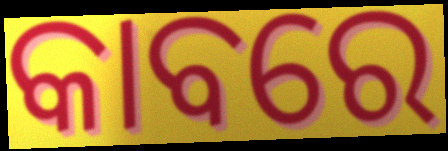
କାବରେ